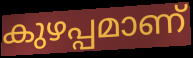
കുഴപ്പമാണ്